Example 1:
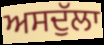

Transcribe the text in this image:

ਅਸਦੁੱਲਾ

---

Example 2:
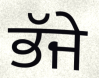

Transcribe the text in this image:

ਭੱਜੇ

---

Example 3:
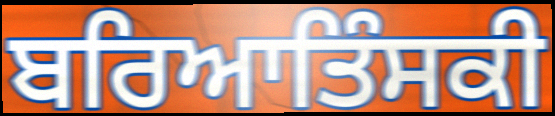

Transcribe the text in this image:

ਬਰਿਆਤਿੰਸਕੀ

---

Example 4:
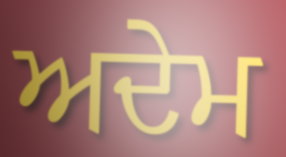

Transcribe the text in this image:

ਅਦੇਮ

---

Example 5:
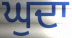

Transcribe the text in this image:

ਘੁਦਾ